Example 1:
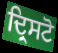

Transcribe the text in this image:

ਦ੍ਰਿਸਟੋ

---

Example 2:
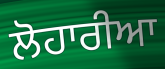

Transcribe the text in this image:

ਲੋਹਾਰੀਆ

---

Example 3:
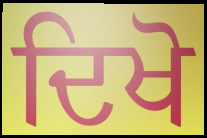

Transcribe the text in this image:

ਦਿਖੋ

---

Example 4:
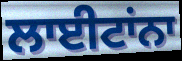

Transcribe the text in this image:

ਲਾਈਟਾਂਨਾ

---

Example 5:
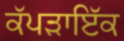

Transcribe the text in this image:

ਕੱਪੜਾਇੱਕ